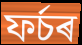
ফৰ্চৰ